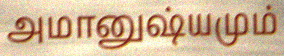
அமானுஷ்யமும்